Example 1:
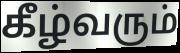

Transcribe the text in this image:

கீழ்வரும்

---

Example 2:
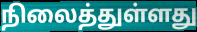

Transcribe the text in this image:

நிலைத்துள்ளது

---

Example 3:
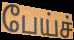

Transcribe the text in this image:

பேய்ச்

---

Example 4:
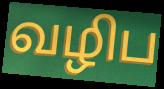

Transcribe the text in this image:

வழிப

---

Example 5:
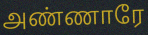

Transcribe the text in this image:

அண்ணாரே